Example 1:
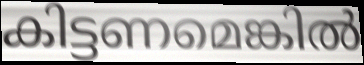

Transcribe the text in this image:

കിട്ടണമെങ്കിൽ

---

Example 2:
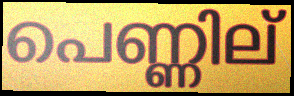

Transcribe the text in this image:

പെണ്ണില്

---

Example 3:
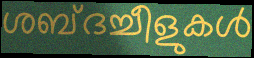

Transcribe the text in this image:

ശബ്ദച്ചീളുകൾ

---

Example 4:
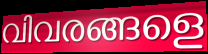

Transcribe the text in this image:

വിവരങ്ങളെ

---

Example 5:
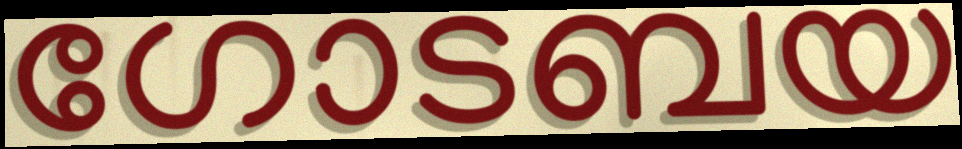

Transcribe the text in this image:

ഗോടബയ